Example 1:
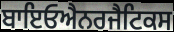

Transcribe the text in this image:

ਬਾਇਓਐਨਰਜੈਟਿਕਸ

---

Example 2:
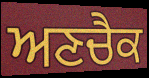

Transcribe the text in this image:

ਅਣਚੈਕ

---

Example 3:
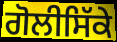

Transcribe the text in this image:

ਗੋਲੀਸਿੱਕੇ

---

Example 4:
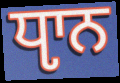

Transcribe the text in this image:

ਧੵਾਨ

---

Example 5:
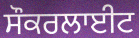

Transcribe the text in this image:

ਸੌਕਰਲਾਈਟ